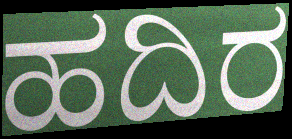
ಹದಿರ